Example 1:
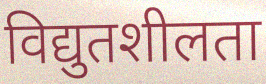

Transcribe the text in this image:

विद्युतशीलता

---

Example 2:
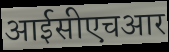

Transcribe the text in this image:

आईसीएचआर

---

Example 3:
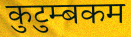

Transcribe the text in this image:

कुटुम्बकम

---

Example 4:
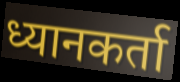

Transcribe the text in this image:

ध्यानकर्ता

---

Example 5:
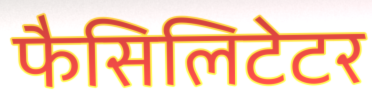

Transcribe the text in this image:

फैसिलिटेटर